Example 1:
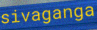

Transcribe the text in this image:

sivaganga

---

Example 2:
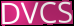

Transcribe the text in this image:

DVCS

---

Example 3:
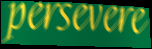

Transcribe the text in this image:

persevere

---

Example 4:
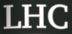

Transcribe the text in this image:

LHC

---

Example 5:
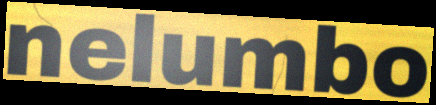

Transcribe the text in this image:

nelumbo